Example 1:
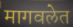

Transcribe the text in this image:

मागवलेत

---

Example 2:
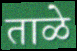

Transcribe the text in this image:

ताळे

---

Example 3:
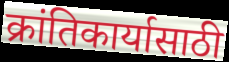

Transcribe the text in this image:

क्रांतिकार्यासाठी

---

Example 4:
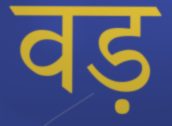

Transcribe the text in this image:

वड़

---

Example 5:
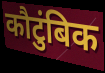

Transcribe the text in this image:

कौटुंबिक